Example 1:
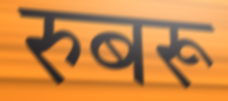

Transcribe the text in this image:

रुबरू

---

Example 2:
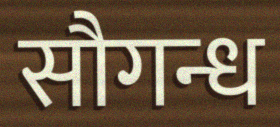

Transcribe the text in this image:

सौगन्ध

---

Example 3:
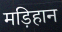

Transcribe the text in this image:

मड़िहान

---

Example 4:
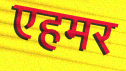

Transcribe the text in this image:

एहमर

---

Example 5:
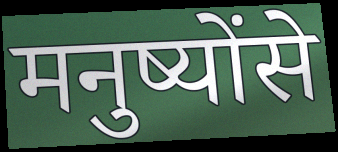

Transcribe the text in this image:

मनुष्योंसे